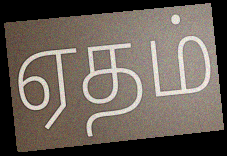
ஏதம்